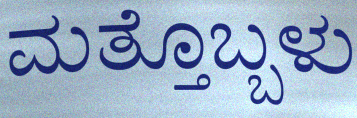
ಮತ್ತೊಬ್ಬಳು